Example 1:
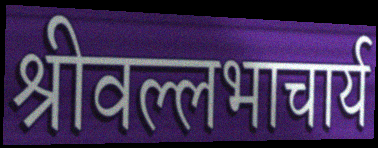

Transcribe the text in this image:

श्रीवल्लभाचार्य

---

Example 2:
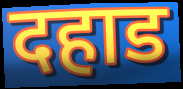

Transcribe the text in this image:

दहाड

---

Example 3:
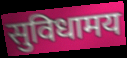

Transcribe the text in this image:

सुविधामय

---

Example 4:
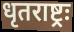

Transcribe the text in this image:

धृतराष्ट्रः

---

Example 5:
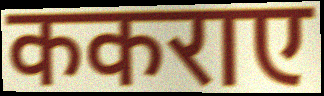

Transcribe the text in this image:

ककराए